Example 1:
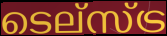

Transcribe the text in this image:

ടെല്സ്ട്ര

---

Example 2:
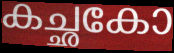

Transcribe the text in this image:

കച്ഛകോ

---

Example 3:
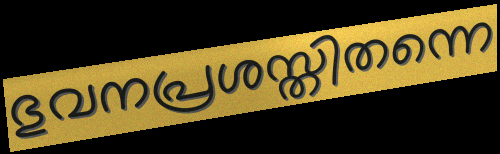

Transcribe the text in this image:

ഭുവനപ്രശസ്തിതന്നെ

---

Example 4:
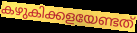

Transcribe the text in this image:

കഴുകിക്കളയേണ്ടത്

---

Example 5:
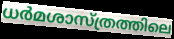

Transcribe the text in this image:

ധർമശാസ്ത്രത്തിലെ